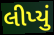
લીપ્યું